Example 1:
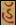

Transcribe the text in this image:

હૅ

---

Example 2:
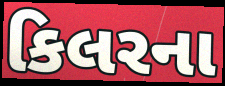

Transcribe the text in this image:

કિલરના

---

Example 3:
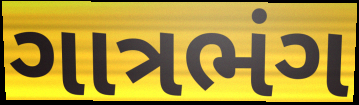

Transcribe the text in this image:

ગાત્રભંગ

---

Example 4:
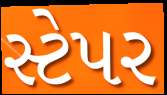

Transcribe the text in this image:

સ્ટેપર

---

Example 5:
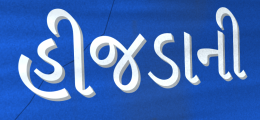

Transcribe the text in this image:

હીજડાની